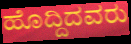
ಹೊದ್ದಿದವರು